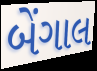
બેંગાલ